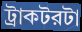
ট্রাকটরটা